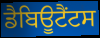
ਡੈਬਿਊਟੈਂਟਸ